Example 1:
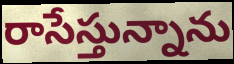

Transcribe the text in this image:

రాసేస్తున్నాను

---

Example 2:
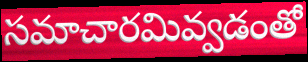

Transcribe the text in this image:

సమాచారమివ్వడంతో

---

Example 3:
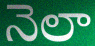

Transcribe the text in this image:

నెలా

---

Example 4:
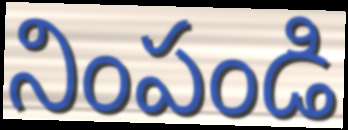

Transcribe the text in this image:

నింపండి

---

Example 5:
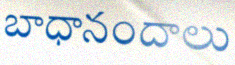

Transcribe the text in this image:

బాధానందాలు